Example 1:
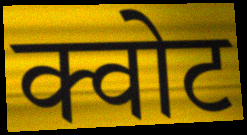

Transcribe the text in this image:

क्वोट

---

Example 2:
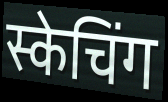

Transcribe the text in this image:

स्केचिंग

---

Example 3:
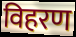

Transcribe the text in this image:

विहरण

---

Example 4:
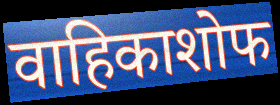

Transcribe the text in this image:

वाहिकाशोफ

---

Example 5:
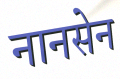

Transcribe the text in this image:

नानसेन